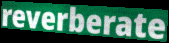
reverberate